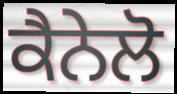
ਕੈਨੇਲੋ